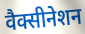
वैक्सीनेशन